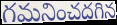
గమనించదగిన